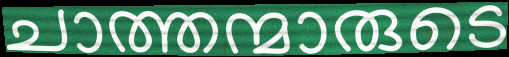
ചാത്തന്മാരുടെ